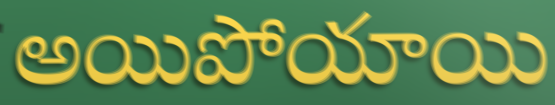
అయిపోయాయి